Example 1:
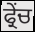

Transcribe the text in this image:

ਫ੍ਰੇੰਚ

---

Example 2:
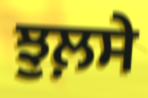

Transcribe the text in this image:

ਝੁਲ਼ਸੇ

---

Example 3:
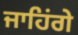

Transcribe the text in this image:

ਜਾਹਿਂਗੇ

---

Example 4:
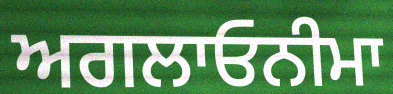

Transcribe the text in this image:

ਅਗਲਾਓਨੀਮਾ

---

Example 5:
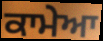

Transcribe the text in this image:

ਕਾਮੇਆ